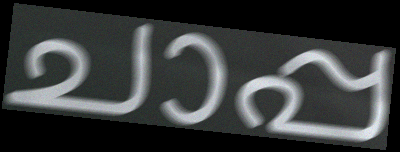
ചാപ്പ